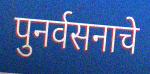
पुनर्वसनाचे